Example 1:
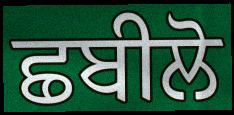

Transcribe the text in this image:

ਛਬੀਲੋ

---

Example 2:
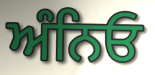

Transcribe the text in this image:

ਅੰਨਿਓ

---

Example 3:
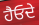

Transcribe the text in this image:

ਹੈਓਦੇ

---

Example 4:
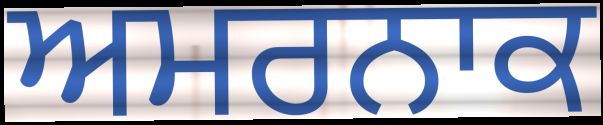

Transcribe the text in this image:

ਅਮਰਨਾਕ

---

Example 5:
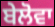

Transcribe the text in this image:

ਬੇਲੋਵਾ